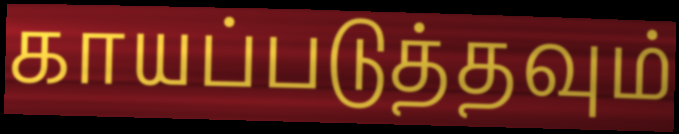
காயப்படுத்தவும்